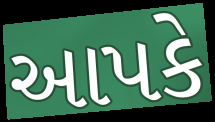
આપકે